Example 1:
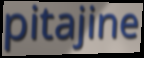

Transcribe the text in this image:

pitajine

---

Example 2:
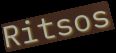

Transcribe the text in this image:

Ritsos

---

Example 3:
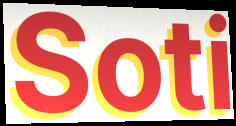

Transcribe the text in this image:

Soti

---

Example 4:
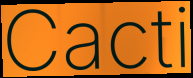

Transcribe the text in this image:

Cacti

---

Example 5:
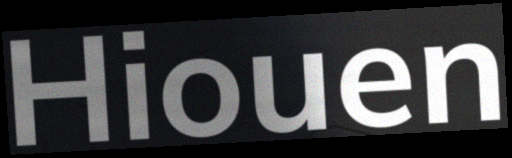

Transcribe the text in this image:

Hiouen